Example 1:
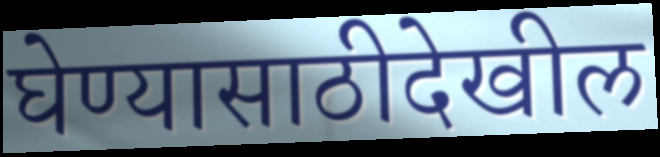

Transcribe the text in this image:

घेण्यासाठीदेखील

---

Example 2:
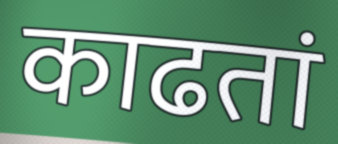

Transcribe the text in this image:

काढतां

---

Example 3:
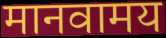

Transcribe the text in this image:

मानवामय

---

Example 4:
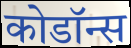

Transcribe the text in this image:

कोडॉन्स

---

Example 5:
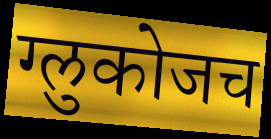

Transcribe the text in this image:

ग्लुकोजच